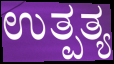
ಉತ್ಪತ್ಯ